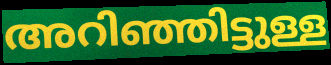
അറിഞ്ഞിട്ടുള്ള